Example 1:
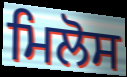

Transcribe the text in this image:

ਮਿਲੋਸ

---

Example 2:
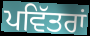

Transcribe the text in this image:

ਪਵਿੱਤਰਾਂ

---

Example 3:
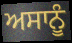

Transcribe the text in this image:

ਅਸਾਨੂੰ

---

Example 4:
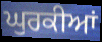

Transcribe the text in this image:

ਘੁਰਕੀਆਂ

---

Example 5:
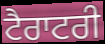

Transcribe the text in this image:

ਟੈਰਾਟਰੀ